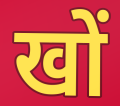
खों